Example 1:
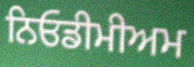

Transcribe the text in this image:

ਨਿਓਡੀਮੀਅਮ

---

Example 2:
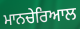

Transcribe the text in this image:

ਮਾਨਚੇਰਿਆਲ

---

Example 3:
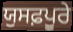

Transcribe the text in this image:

ਯੁਸਫ਼ਪੂਰੇ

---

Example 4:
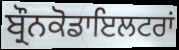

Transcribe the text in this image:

ਬ੍ਰੌਨਕੋਡਾਇਲਟਰਾਂ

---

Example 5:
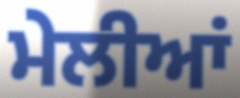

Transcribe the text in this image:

ਮੇਲੀਆਂ